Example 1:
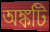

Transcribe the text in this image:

অঙ্কটি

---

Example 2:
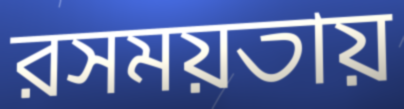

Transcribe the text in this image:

রসময়তায়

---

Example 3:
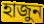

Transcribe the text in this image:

হাজুন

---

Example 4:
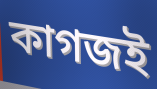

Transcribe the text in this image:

কাগজই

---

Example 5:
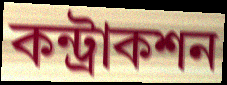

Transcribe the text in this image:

কন্ট্রাকশন